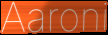
Aaroni